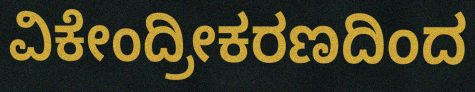
ವಿಕೇಂದ್ರೀಕರಣದಿಂದ